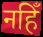
नहिँ